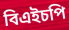
বিএইচপি